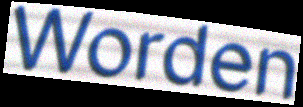
Worden